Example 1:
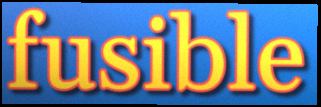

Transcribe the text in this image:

fusible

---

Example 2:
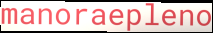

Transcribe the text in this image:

manoraepleno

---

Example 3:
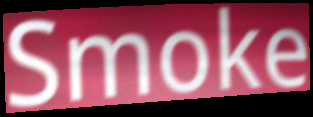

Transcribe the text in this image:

Smoke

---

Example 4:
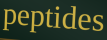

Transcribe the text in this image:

peptides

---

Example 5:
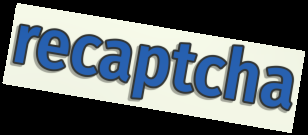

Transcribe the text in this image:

recaptcha